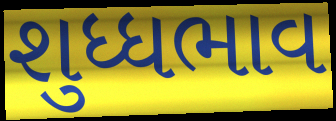
શુધ્ધભાવ